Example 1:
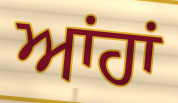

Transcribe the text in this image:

ਆਂਹਾਂ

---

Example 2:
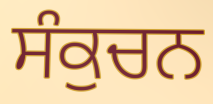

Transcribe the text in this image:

ਸੰਕੁਚਨ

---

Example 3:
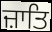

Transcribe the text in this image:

ਜ਼ਾਤਿ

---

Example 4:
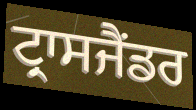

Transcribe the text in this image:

ਟ੍ਰਾਸਜੈਂਡਰ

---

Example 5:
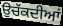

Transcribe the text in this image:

ਉਚੱਕਦੀਆਂ